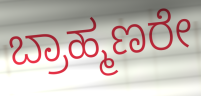
ಬ್ರಾಹ್ಮಣರೇ